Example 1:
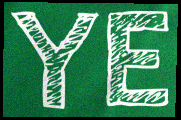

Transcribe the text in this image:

YE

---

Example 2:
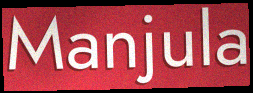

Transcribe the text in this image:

Manjula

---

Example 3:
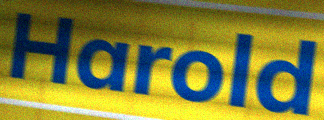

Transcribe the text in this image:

Harold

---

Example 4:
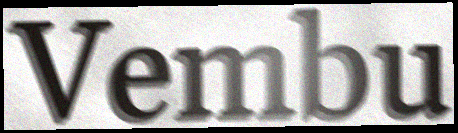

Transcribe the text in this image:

Vembu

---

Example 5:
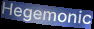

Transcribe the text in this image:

Hegemonic